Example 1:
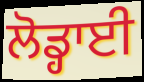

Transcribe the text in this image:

ਲੋਡ੍ਹਾਈ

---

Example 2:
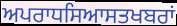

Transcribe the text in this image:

ਅਪਰਾਧਸਿਆਸਤਖਬਰਾਂ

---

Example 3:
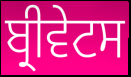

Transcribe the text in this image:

ਬ੍ਰੀਵੇਟਸ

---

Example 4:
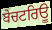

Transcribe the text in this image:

ਬੇਚਟਰਿਊ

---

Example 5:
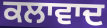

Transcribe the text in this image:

ਕਲਾਵਾਦ